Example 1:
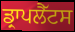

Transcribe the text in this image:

ਡ੍ਰਾਪਲੈੱਟਸ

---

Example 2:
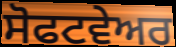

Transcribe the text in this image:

ਸੋਫਟਵੇਅਰ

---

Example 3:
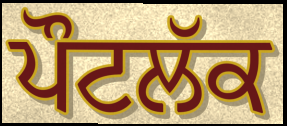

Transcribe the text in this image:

ਪੌਟਲੱਕ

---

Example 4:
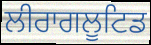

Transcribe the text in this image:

ਲੀਰਾਗਲੂਟਿਡ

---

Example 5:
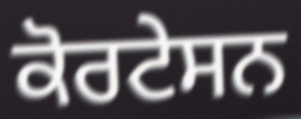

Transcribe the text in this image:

ਕੋਰਟੇਸਨ